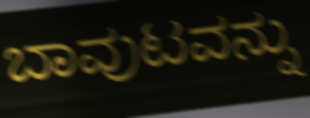
ಬಾವುಟವನ್ನು